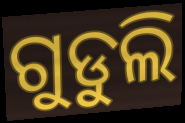
ଗୁଡୁଲି